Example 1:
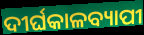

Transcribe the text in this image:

ଦୀର୍ଘକାଳବ୍ୟାପୀ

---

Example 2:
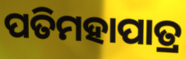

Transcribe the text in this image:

ପତିମହାପାତ୍ର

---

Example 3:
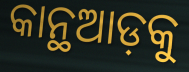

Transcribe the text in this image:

କାନ୍ଥଆଡ଼କୁ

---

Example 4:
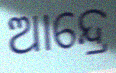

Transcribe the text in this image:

ଆନ୍ଦ୍ରେ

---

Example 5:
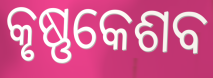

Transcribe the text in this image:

କୃଷ୍ଣକେଶବ